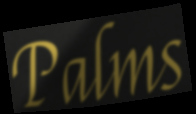
Palms